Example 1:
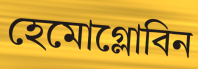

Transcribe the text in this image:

হেমোগ্লোবিন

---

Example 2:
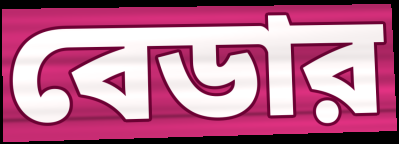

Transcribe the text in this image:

বেডার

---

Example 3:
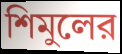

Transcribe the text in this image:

শিমুলের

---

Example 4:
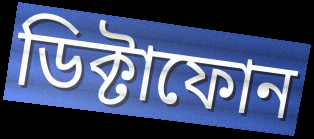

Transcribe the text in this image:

ডিক্টাফোন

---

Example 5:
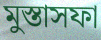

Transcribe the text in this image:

মুস্তাসফা